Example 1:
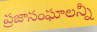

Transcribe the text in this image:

ప్రజాసంఘాలన్నీ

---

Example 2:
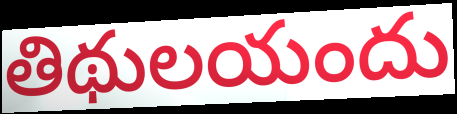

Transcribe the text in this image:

తిథులయందు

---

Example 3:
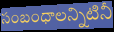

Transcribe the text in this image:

సంబంధాలన్నిటినీ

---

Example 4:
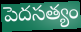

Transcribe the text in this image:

పెదసత్యం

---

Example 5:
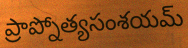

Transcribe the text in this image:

ప్రాప్నోత్యసంశయమ్